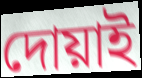
দোয়াই